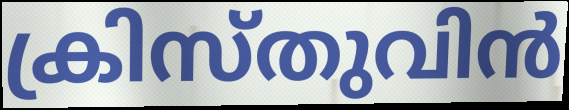
ക്രിസ്തുവിൻ